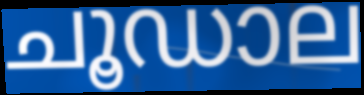
ചൂഡാല